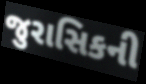
જુરાસિકની